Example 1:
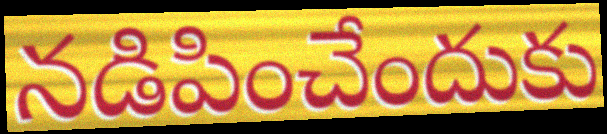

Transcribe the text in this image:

నడిపించేందుకు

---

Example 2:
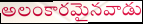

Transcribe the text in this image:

అలంకారమైనవాడు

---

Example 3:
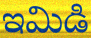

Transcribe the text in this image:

ఇమిడి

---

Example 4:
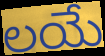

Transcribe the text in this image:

లయే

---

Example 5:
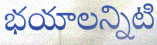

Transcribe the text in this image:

భయాలన్నిటి